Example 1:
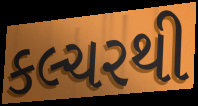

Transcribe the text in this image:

કલ્ચરથી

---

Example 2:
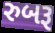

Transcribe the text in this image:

રુબરૂ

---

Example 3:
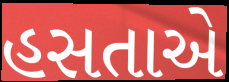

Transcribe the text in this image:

હસતાએ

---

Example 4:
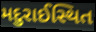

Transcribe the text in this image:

મદુરાઈસ્થિત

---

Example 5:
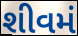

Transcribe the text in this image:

શીવમં